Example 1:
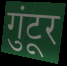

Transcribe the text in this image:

गुंटूर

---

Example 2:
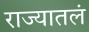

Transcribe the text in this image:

राज्यातलं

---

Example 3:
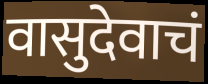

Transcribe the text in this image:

वासुदेवाचं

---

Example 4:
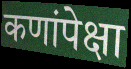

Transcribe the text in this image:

कणांपेक्षा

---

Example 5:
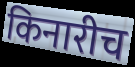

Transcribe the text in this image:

किनारीच